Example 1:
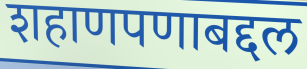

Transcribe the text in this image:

शहाणपणाबद्दल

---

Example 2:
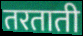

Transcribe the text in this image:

तरताती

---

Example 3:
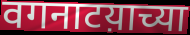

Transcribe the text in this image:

वगनाटय़ाच्या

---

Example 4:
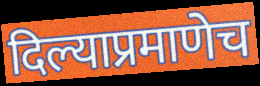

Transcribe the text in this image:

दिल्याप्रमाणेच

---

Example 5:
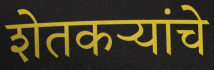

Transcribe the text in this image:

शेतकर्‍यांचे